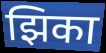
झिका